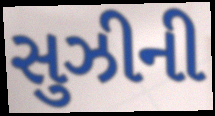
સુઝીની